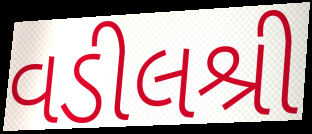
વડીલશ્રી